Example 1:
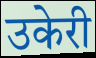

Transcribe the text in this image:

उकेरी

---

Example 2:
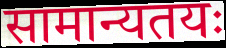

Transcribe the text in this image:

सामान्यतयः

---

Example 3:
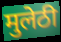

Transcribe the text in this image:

मुलेठी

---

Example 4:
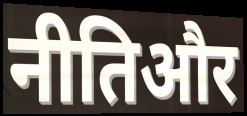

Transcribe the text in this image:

नीतिऔर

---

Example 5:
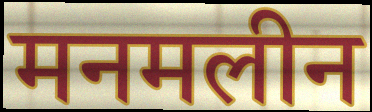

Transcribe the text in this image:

मनमलीन